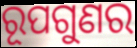
ରୂପଗୁଣର